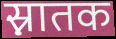
स्नातक